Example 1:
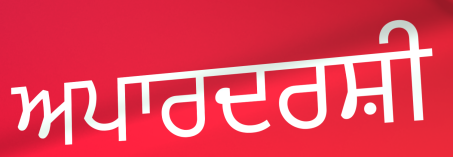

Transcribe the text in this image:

ਅਪਾਰਦਰਸ਼ੀ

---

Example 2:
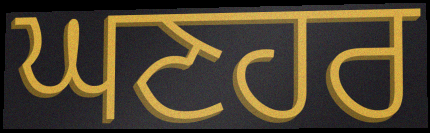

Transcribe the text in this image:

ਘਣਹਰ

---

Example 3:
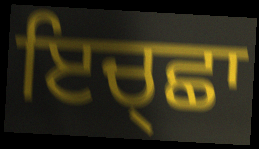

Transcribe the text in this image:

ਇਚ੍ਛਾ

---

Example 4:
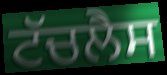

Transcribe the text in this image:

ਟੱਚਲੈਸ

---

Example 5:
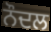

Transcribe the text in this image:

ਨੌਦਲ